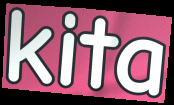
kita